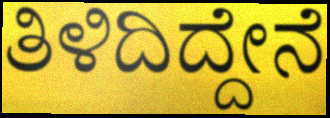
ತಿಳಿದಿದ್ದೇನೆ